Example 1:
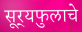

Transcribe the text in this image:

सूर्यफुलाचे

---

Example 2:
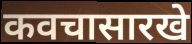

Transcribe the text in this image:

कवचासारखे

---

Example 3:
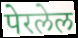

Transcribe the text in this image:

पेरलेल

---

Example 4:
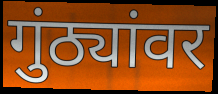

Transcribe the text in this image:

गुंठ्यांवर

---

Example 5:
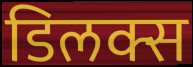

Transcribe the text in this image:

डिलक्स